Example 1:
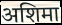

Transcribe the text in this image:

अशिमा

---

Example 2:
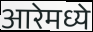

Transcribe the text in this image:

आरेमध्ये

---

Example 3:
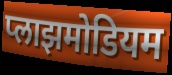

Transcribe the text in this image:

प्लाझमोडियम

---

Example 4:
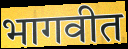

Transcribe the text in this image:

भागवीत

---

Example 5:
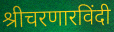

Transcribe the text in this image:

श्रीचरणारविंदी